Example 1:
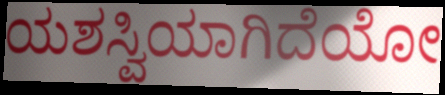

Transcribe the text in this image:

ಯಶಸ್ವಿಯಾಗಿದೆಯೋ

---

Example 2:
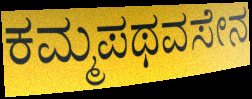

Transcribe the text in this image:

ಕಮ್ಮಪಥವಸೇನ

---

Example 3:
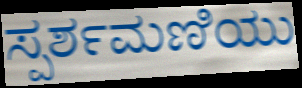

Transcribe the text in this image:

ಸ್ಪರ್ಶಮಣಿಯು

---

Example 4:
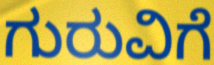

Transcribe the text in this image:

ಗುರುವಿಗೆ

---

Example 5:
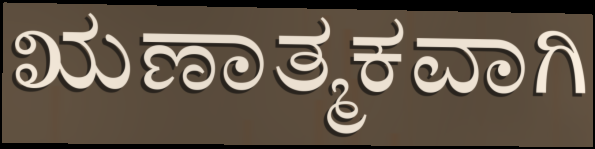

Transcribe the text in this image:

ಋಣಾತ್ಮಕವಾಗಿ